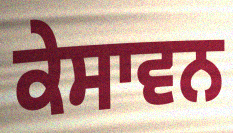
ਕੇਸਾਵਨ